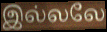
இல்லலே